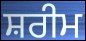
ਸ਼ਰੀਮ